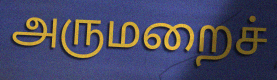
அருமறைச்